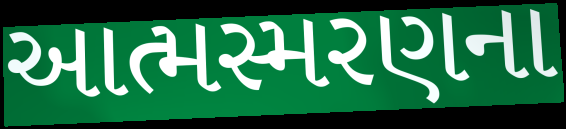
આત્મસ્મરણના